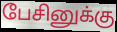
பேசினுக்கு